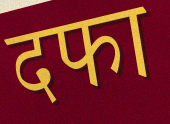
दफा